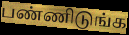
பண்ணிடுங்க